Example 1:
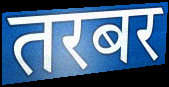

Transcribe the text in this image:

तरबर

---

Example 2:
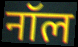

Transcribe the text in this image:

नॉल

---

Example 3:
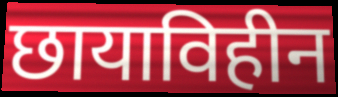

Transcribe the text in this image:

छायाविहीन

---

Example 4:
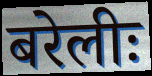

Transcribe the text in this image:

बरेलीः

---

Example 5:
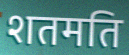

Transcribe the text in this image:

शतमति